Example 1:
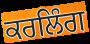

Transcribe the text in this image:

ਕਰਲਿੰਗ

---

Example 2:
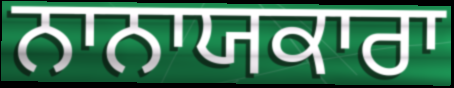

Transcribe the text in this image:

ਨਾਨਾਯਕਾਰਾ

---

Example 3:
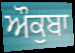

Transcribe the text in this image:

ਔਕੁਬਾ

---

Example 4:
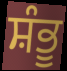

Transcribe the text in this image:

ਸ਼ੰਭੂ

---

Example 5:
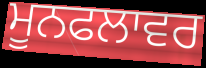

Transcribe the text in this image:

ਮੂਨਫਲਾਵਰ